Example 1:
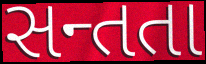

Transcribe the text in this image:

સન્તતા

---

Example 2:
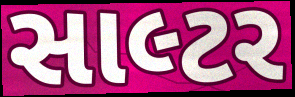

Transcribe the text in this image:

સાલ્ટર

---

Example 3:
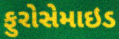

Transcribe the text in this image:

ફુરોસેમાઇડ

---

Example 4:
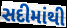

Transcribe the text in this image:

સદીમાંથી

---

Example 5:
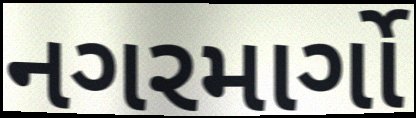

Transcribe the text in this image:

નગરમાર્ગો